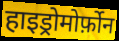
हाइड्रोमोर्फ़ोन